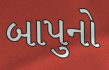
બાપુનો